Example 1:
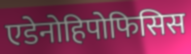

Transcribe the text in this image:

एडेनोहिपोफिसिस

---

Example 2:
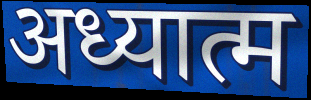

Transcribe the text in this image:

अध्यात्म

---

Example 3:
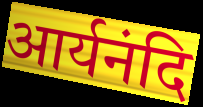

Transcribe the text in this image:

आर्यनंदि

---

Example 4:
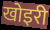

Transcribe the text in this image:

खोइरी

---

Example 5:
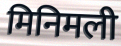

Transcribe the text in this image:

मिनिमली